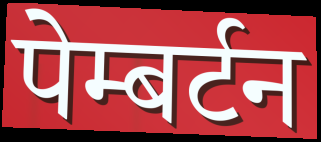
पेम्बर्टन